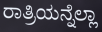
ರಾತ್ರಿಯನ್ನೆಲ್ಲಾ